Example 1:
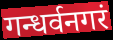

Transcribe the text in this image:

गन्धर्वनगरं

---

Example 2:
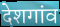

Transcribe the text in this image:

देशगांव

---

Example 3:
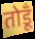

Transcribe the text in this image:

तोडूँ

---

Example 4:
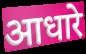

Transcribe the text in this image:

आधारे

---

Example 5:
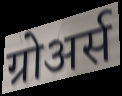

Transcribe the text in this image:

ग्रोअर्स